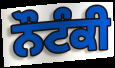
ਨੌਟੰਕੀ